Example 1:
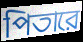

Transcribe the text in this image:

পিতারে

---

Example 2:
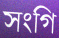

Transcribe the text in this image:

সংগি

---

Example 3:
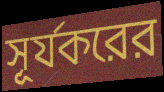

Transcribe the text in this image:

সূর্যকরের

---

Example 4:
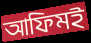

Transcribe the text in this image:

আফিমই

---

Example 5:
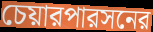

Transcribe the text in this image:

চেয়ারপারসনের